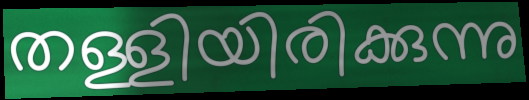
തള്ളിയിരിക്കുന്നു